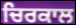
ਚਿਰਕਾਲ